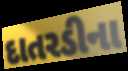
દાતરડીના